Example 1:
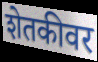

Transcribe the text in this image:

शेतकीवर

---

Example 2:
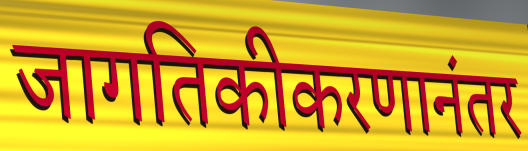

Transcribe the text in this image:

जागतिकीकरणानंतर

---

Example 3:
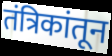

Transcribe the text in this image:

तंत्रिकांतून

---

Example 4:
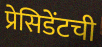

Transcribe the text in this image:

प्रेसिडेंटची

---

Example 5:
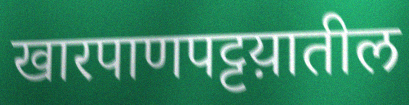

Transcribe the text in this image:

खारपाणपट्टय़ातील